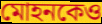
মোহনকেও